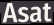
Asat